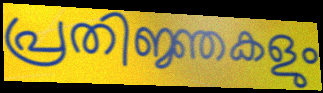
പ്രതിജ്ഞകളും